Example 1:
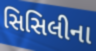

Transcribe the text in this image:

સિસિલીના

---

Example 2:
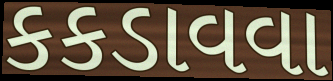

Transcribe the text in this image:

કકડાવવા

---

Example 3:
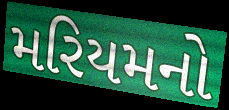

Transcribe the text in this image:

મરિયમનો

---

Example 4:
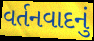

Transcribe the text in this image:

વર્તનવાદનું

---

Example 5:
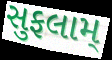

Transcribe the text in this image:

સુફલામ્